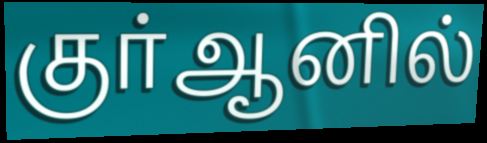
குர்ஆனில்